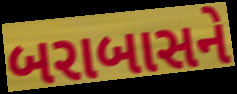
બરાબાસને